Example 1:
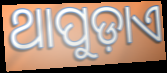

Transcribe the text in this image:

ଥାପୁଡ଼ାଏ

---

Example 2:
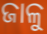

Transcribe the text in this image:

ଜାଳୁ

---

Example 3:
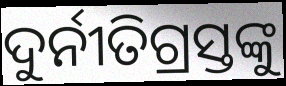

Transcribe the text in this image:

ଦୁର୍ନୀତିଗ୍ରସ୍ତଙ୍କୁ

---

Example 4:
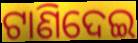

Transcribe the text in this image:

ଟାଣିଦେଇ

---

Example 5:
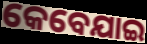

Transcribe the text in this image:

କେବେଯାଇ